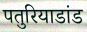
पतुरियाडांड